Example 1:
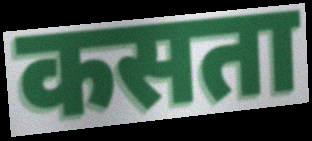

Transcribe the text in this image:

कसता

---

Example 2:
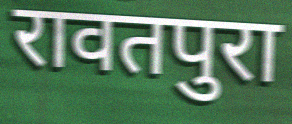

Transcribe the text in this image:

रावतपुरा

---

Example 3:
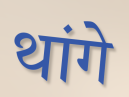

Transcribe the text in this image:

थांगे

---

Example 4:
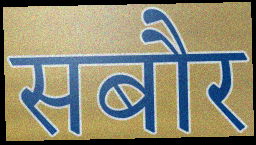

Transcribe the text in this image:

सबौर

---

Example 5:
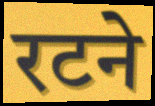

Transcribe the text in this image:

रटने